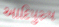
આદિપુરુષ